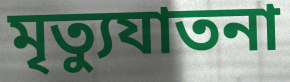
মৃত্যুযাতনা